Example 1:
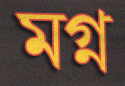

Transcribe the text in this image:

মগ্ন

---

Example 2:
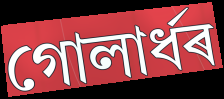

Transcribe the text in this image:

গোলাৰ্ধৰ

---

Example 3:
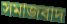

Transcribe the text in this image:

সমাজবাদ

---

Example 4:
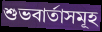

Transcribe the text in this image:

শুভবাৰ্তাসমূহ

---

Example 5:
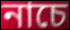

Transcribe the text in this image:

নাচে